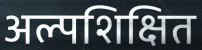
अल्पशिक्षित